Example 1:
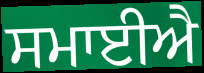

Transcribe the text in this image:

ਸਮਾਈਐ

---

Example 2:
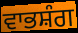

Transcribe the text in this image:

ਵਾਭਸ਼ੰਗ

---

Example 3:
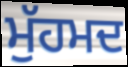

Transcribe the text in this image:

ਮੁੱਹਮਦ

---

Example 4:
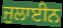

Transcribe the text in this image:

ਜੁਲਾਈਨ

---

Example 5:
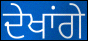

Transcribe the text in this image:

ਦੇਖਾਂਗੇ